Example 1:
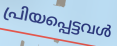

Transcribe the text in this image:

പ്രിയപ്പെട്ടവൾ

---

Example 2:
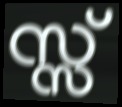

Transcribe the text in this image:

സ്സ്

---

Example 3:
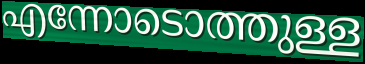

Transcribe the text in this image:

എന്നോടൊത്തുള്ള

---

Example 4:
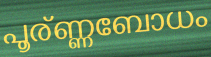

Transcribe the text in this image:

പൂര്ണ്ണബോധം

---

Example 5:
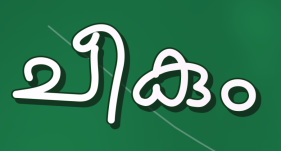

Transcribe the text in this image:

ചീകും